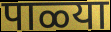
पाळ्या